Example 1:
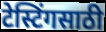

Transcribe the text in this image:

टेस्टिंगसाठी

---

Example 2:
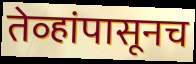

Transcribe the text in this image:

तेव्हांपासूनच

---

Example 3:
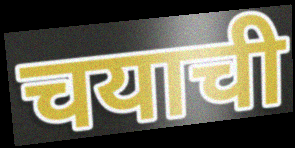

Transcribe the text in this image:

चयाची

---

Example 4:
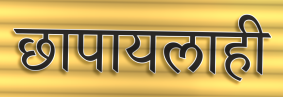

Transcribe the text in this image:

छापायलाही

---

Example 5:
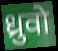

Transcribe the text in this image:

ध्रुवो